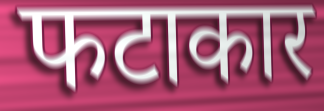
फटाकार